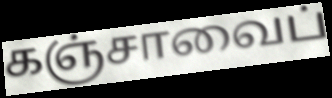
கஞ்சாவைப்